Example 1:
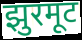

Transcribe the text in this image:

झुरमूट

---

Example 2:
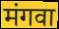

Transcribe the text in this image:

मंगवा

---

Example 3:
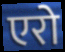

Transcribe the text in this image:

एरो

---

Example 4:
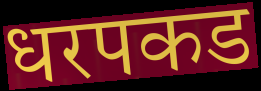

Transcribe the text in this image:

धरपकड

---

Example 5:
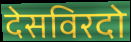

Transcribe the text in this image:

देसविरदो